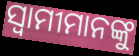
ସ୍ଵାମୀମାନଙ୍କୁ